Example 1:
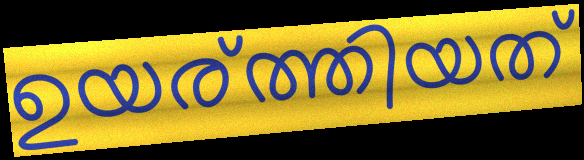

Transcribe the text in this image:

ഉയര്ത്തിയത്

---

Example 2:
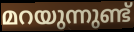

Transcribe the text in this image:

മറയുന്നുണ്ട്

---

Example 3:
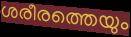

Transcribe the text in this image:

ശരീരത്തെയും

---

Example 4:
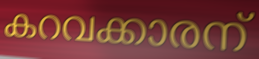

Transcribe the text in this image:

കറവക്കാരന്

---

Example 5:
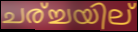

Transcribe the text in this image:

ചര്ച്ചയില്